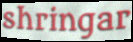
shringar